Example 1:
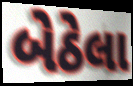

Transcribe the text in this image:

બેઠેલા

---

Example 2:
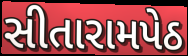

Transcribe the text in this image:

સીતારામપેઠ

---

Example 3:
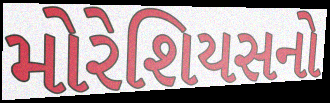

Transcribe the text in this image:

મોરેશિયસનો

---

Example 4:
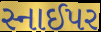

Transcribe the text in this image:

સ્નાઈપર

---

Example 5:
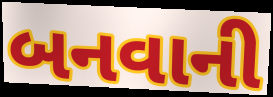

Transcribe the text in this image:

બનવાની